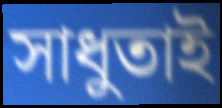
সাধুতাই